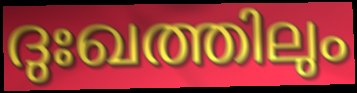
ദുഃഖത്തിലും